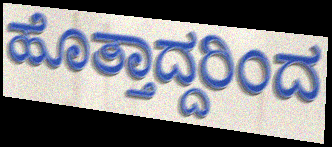
ಹೊತ್ತಾದ್ದರಿಂದ